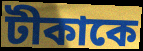
টীকাকে